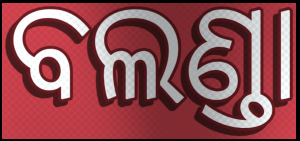
ବଲଣ୍ଡା